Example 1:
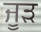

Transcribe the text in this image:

ਜੂੜ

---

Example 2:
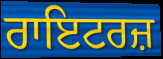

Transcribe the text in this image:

ਰਾਇਟਰਜ਼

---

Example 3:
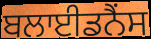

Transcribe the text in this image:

ਬਲਾਈਡਨੈਂਸ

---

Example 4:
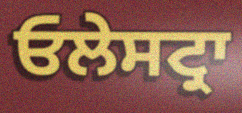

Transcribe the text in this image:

ਓਲੇਸਟ੍ਰਾ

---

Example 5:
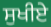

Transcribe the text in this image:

ਸੁਖੀਏ